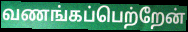
வணங்கப்பெற்றேன்